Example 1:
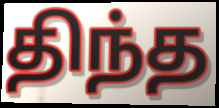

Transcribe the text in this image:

திந்த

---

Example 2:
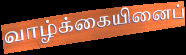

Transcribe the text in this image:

வாழ்க்கையினைப்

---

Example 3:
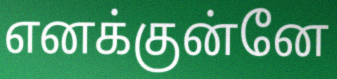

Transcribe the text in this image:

எனக்குன்னே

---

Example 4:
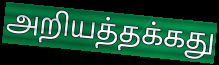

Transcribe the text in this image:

அறியத்தக்கது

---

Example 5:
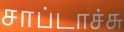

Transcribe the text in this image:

சாப்டாச்சு